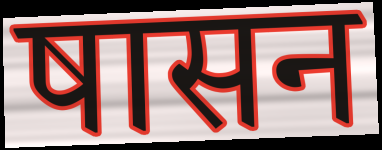
षासन